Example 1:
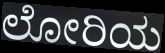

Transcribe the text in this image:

ಲೋರಿಯ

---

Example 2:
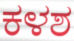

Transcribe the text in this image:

ಕಳಶ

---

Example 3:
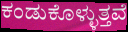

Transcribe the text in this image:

ಕಂಡುಕೊಳ್ಳುತ್ತವೆ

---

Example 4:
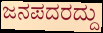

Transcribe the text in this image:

ಜನಪದರದ್ದು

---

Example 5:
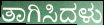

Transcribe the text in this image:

ತಾಗಿಸಿದಳು